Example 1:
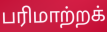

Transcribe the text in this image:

பரிமாற்றக்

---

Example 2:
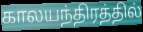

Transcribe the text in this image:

காலயந்திரத்தில்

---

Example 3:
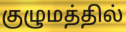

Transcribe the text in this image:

குழுமத்தில்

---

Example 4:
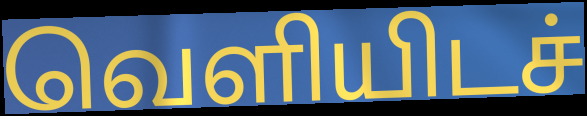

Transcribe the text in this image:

வெளியிடச்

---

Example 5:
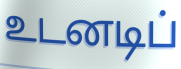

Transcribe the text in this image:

உடனடிப்